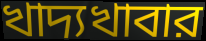
খাদ্যখাবার